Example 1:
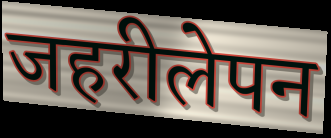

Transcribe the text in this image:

जहरीलेपन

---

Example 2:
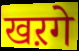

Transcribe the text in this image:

खऱगे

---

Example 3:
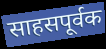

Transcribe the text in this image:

साहसपूर्वक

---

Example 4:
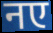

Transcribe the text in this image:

नए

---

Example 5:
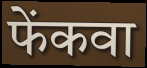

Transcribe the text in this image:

फेंकवा